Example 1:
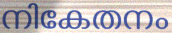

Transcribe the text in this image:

നികേതനം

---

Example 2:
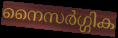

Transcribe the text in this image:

നൈസർഗ്ഗിക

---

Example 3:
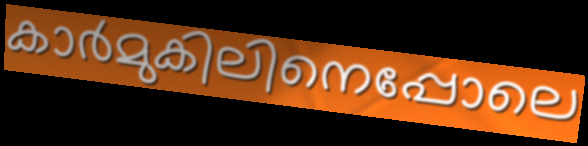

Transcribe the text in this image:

കാർമുകിലിനെപ്പോലെ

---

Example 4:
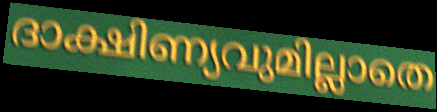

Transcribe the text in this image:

ദാക്ഷിണ്യവുമില്ലാതെ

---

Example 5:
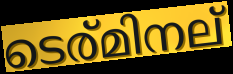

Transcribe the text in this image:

ടെര്മിനല്